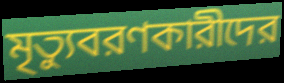
মৃত্যুবরণকারীদের